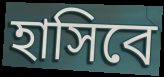
হাসিবে